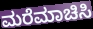
ಮರೆಮಾಚಿಸಿ